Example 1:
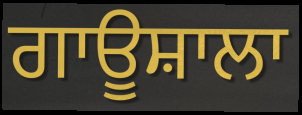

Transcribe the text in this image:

ਗਾਊਸ਼ਾਲਾ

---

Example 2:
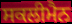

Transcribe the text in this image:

ਸਕਲੀਮੈਨ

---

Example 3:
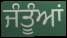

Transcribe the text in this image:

ਜੰਤੂੰਆਂ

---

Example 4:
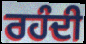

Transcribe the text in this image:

ਰਹੰਦੀ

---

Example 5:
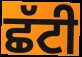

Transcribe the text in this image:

ਛੱਟੀ